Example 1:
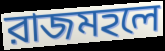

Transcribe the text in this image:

রাজমহলে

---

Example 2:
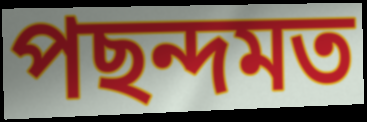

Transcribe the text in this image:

পছন্দমত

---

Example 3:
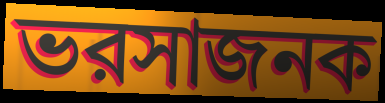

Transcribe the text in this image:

ভরসাজনক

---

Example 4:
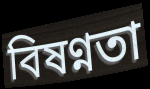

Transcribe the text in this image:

বিষণ্নতা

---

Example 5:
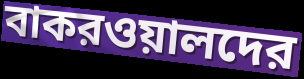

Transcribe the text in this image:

বাকরওয়ালদের